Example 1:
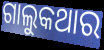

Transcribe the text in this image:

ଗାଲୁକଥାର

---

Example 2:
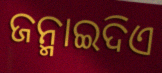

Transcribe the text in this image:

ଜନ୍ମାଇଦିଏ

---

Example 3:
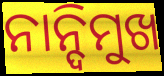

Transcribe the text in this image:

ନାନ୍ଦିମୁଖ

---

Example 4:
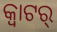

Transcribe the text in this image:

କ୍ୱାଟର୍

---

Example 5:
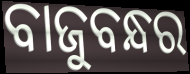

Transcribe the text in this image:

ବାଜୁବନ୍ଧର